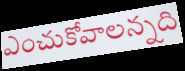
ఎంచుకోవాలన్నది